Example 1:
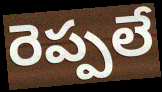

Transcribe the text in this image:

రెప్పలే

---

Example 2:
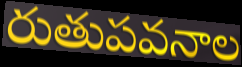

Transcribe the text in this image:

రుతుపవనాల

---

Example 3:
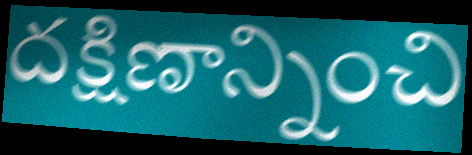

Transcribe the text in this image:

దక్షిణాన్నించి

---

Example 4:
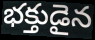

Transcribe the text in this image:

భక్తుడైన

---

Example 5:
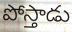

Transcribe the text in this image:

పోస్తాడు